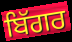
ਬਿੱਗਰ